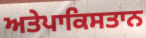
ਅਤੇਪਾਕਿਸਤਾਨ